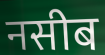
नसीब